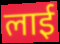
लाई